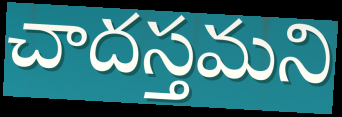
చాదస్తమని